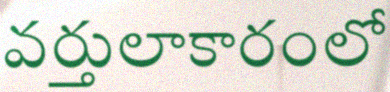
వర్తులాకారంలో